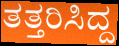
ತತ್ತರಿಸಿದ್ದ